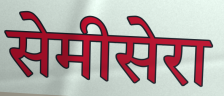
सेमीसेरा